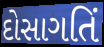
દોસાગતિં